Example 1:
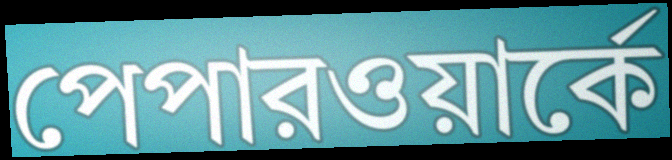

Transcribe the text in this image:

পেপারওয়ার্কে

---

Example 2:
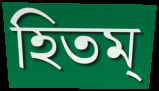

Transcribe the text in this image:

হিতম্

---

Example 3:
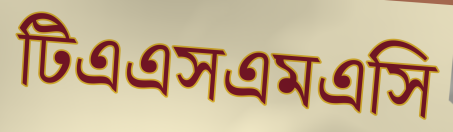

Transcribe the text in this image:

টিএএসএমএসি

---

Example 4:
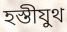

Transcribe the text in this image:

হস্তীযুথ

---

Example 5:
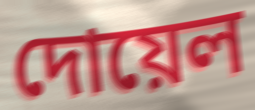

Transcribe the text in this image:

দোয়েল